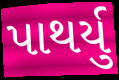
પાથર્યુ